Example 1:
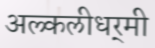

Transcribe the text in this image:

अल्कलीधर्मी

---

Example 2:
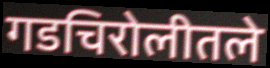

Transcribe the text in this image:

गडचिरोलीतले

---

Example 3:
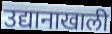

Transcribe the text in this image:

उद्यानाखाली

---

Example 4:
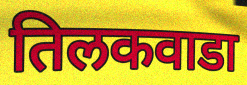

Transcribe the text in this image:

तिलकवाडा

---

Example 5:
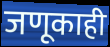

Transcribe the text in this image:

जणूकाही